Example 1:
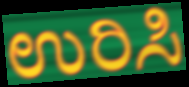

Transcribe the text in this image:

ಉರಿಸಿ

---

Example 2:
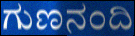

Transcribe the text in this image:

ಗುಣನಂದಿ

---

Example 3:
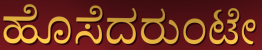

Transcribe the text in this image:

ಹೊಸೆದರುಂಟೇ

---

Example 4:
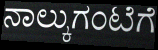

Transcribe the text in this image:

ನಾಲ್ಕುಗಂಟೆಗೆ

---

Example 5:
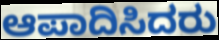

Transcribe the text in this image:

ಆಪಾದಿಸಿದರು